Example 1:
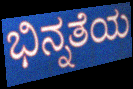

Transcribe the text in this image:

ಭಿನ್ನತೆಯ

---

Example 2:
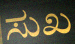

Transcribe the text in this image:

ಸುಖ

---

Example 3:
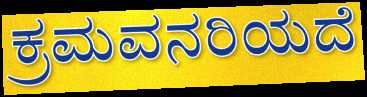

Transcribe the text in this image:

ಕ್ರಮವನರಿಯದೆ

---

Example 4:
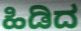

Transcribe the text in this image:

ಹಿಡಿದ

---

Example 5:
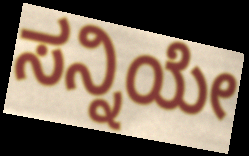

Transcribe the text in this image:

ಸನ್ನಿಯೇ